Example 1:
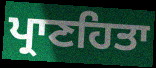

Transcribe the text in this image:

ਪ੍ਰਾਣਹਿਤਾ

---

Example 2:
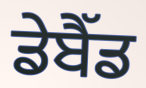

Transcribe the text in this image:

ਡੇਬੈੱਡ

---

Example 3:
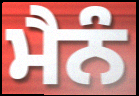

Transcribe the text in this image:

ਮੈਨੰ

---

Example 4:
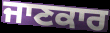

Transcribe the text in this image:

ਜਾਣਕਾਰ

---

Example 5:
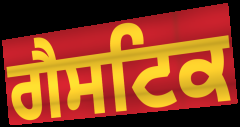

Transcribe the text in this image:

ਗੈਸਟਿਕ